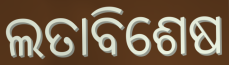
ଲତାବିଶେଷ